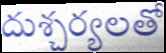
దుశ్చర్యలతో